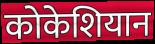
कोकेशियान